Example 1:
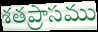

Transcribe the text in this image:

శతప్రాసము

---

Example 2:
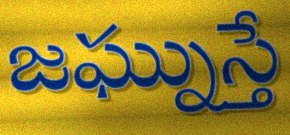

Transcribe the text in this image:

జఘ్నుస్తే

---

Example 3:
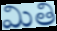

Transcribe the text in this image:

మితి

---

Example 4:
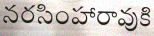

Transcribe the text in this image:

నరసింహారావుకి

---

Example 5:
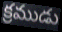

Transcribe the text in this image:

క్రముడు